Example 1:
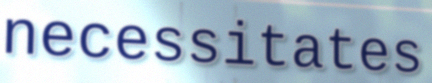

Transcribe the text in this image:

necessitates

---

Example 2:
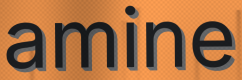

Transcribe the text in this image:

amine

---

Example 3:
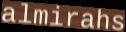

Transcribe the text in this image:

almirahs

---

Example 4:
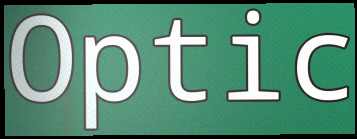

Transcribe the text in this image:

Optic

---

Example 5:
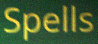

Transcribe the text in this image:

Spells